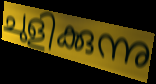
ചുളിക്കുന്നു